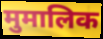
मुमालिक